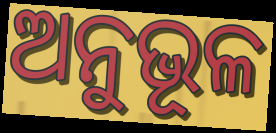
ଅନୁଭୂଳ